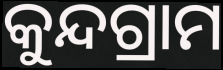
କୁନ୍ଦଗ୍ରାମ